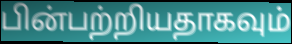
பின்பற்றியதாகவும்